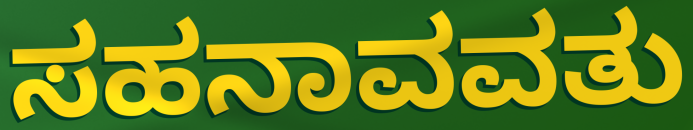
ಸಹನಾವವತು